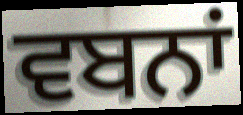
ਵਬਨਾਂ